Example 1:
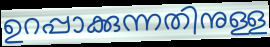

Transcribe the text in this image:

ഉറപ്പാക്കുന്നതിനുള്ള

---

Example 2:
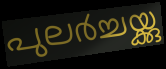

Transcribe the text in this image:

പുലർച്ചയ്ക്കു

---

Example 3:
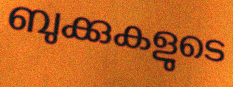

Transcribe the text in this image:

ബുക്കുകളുടെ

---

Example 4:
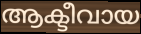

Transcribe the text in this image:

ആക്ടീവായ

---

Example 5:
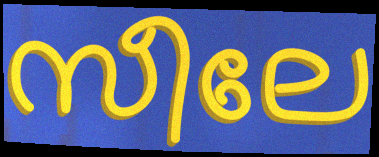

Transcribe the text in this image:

സീലേ